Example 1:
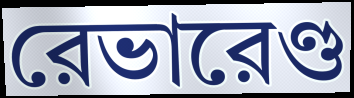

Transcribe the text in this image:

রেভারেণ্ড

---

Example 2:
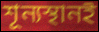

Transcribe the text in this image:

শূন্যস্থানই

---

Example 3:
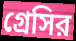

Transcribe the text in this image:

গ্রেসির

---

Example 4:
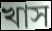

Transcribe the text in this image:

খাস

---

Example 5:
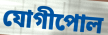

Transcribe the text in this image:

যোগীপোল